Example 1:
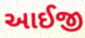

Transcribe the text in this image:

આઈજી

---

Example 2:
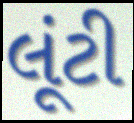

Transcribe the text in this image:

લૂંટી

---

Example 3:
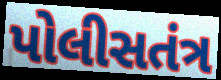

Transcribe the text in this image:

પોલીસતંત્ર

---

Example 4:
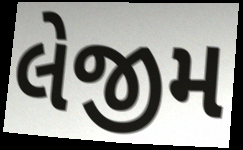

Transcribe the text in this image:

લેજીમ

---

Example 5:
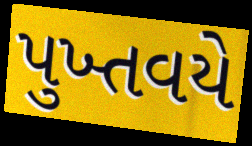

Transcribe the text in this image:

પુખ્તવયે